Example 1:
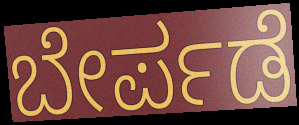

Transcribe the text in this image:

ಬೇರ್ಪಡೆ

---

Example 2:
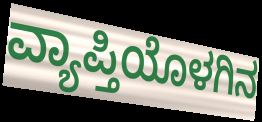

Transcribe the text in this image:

ವ್ಯಾಪ್ತಿಯೊಳಗಿನ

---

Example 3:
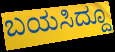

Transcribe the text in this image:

ಬಯಸಿದ್ದೂ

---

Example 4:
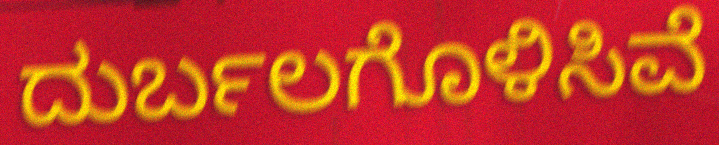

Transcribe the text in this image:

ದುರ್ಬಲಗೊಳಿಸಿವೆ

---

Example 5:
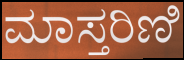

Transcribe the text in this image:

ಮಾಸ್ತರಿಣಿ